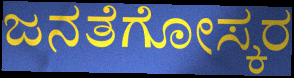
ಜನತೆಗೋಸ್ಕರ